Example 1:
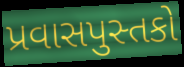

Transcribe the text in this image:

પ્રવાસપુસ્તકો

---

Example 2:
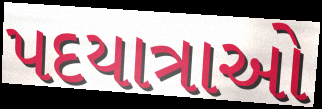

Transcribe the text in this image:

પદયાત્રાઓ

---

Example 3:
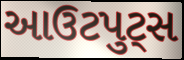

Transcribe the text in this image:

આઉટપુટ્સ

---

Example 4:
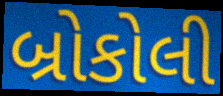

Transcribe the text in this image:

બ્રોકોલી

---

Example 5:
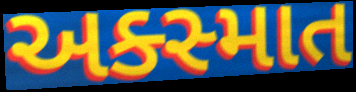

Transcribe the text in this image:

અક્સ્માત